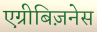
एग्रीबिज़नेस